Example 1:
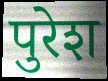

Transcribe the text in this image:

पुरेश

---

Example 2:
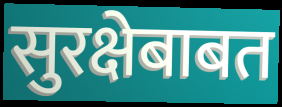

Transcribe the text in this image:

सुरक्षेबाबत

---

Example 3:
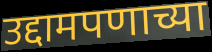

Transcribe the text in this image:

उद्दामपणाच्या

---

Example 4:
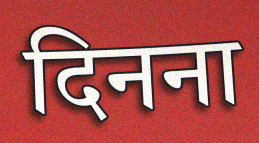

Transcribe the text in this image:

दिनना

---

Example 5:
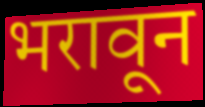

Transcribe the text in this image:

भरावून